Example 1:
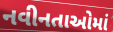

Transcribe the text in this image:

નવીનતાઓમાં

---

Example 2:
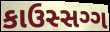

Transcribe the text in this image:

કાઉસ્સગ્ગ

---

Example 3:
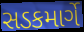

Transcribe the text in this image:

સડકમાર્ગે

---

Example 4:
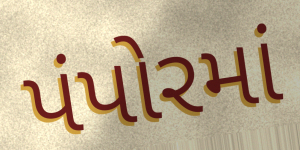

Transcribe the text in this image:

પંપોરમાં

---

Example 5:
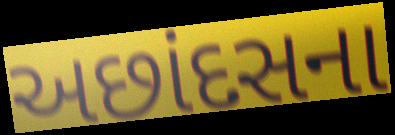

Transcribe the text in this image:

અછાંદસના